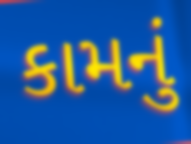
કામનું